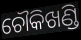
ଚୌକିଖଣ୍ଡି